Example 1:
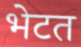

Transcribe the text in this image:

भेटत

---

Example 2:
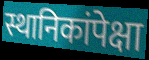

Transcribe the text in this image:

स्थानिकांपेक्षा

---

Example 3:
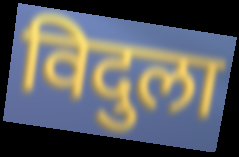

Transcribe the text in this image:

विदुला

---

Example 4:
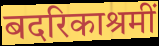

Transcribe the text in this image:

बदरिकाश्रमीं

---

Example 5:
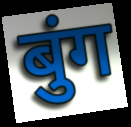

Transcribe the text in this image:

बुंग